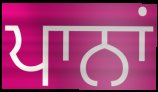
ਪਾਨਾਂ